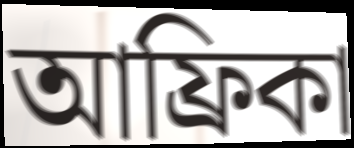
আফ্ৰিকা